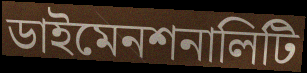
ডাইমেনশনালিটি